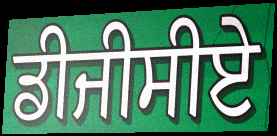
ਡੀਜੀਸੀਏ